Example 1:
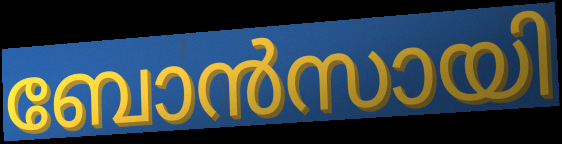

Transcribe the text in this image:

ബോൻസായി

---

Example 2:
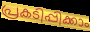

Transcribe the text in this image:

പ്രകടിപ്പിക്കാം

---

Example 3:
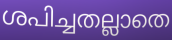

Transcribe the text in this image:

ശപിച്ചതല്ലാതെ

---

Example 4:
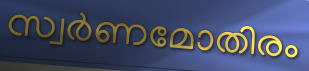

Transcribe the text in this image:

സ്വർണമോതിരം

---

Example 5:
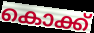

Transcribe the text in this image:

കൊക്ക്